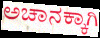
ಅಚಾನಕ್ಕಾಗಿ